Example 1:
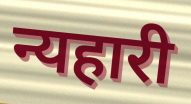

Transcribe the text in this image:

न्यहारी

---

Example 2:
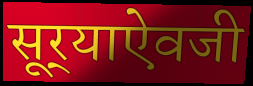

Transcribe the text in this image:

सूर्याऐवजी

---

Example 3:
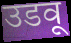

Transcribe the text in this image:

उडवू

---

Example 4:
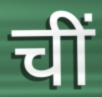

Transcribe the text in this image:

चीं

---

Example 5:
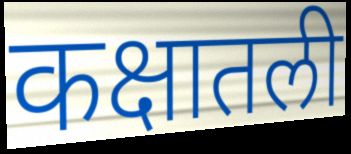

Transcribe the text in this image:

कक्षातली